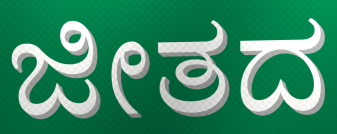
ಜೀತದ